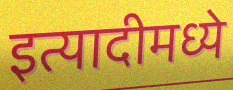
इत्यादीमध्ये